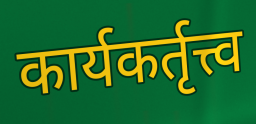
कार्यकर्तृत्त्व